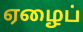
ஏழைப்